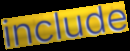
include